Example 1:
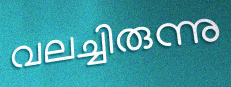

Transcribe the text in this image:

വലച്ചിരുന്നു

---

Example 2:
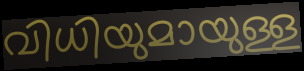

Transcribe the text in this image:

വിധിയുമായുള്ള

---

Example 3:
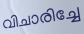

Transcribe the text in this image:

വിചാരിച്ചേ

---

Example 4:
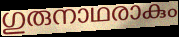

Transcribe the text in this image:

ഗുരുനാഥരാകും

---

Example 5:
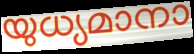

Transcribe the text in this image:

യുധ്യമാനാ